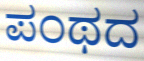
ಪಂಥದ